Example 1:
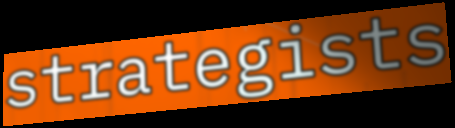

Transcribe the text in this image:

strategists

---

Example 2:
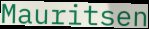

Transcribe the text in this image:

Mauritsen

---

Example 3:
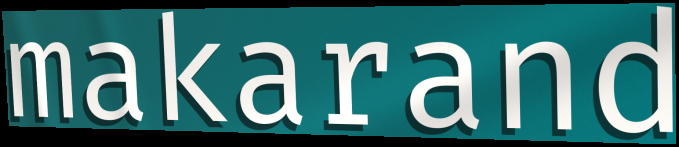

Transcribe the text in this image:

makarand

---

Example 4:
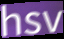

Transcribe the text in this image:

hsv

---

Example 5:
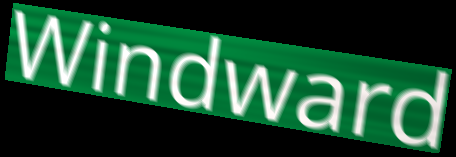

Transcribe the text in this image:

Windward